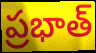
ప్రభాత్